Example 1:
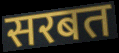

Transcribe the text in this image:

सरबत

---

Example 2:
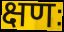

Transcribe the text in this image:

क्षणः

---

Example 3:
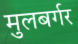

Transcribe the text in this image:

मुलबर्गर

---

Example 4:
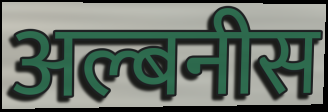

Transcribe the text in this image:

अल्बनीस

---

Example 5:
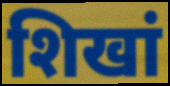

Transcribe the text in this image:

शिखां